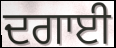
ਦਗਾਈ